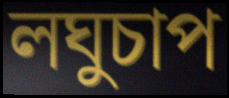
লঘুচাপ